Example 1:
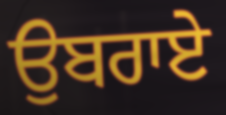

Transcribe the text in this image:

ਉਬਰਾਏ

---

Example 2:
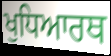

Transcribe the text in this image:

ਖੁਧਿਆਰਥ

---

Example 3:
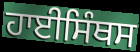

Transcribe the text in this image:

ਹਾਈਸਿੰਥਸ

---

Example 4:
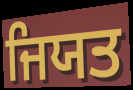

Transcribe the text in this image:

ਜਿਯਤ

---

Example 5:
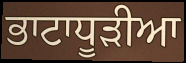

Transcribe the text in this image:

ਭਾਟਾਧੂੜੀਆ